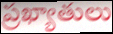
ప్రఖ్యాతులు